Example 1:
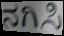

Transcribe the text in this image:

ನಗಿಸಿ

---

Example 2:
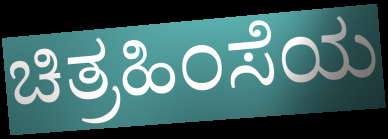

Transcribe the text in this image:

ಚಿತ್ರಹಿಂಸೆಯ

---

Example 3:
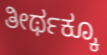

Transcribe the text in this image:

ತೀರ್ಥಕ್ಕೂ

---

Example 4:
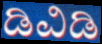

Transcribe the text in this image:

ಡಿವಿಡಿ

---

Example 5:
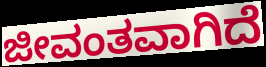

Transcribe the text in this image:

ಜೀವಂತವಾಗಿದೆ